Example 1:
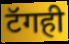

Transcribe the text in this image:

टॅगही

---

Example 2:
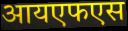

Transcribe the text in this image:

आयएफएस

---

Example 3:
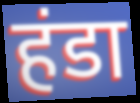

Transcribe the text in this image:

हंडा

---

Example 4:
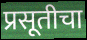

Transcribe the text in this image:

प्रसूतीचा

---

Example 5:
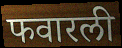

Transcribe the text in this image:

फवारली